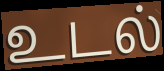
உடல்